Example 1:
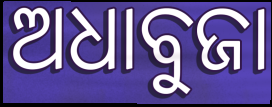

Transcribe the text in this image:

ଅଧାବୁଜା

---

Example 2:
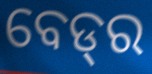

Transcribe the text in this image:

ବେଡ୍‍ର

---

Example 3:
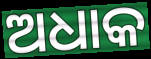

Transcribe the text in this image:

ଅଧାକ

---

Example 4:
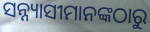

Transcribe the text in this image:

ସନ୍ନ୍ୟାସୀମାନଙ୍କଠାରୁ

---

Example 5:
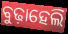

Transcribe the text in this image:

ବୁଢ଼ାହେଲି